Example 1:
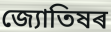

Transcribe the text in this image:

জ্যোতিষৰ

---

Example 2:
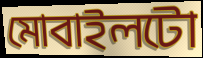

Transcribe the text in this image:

মোবাইলটো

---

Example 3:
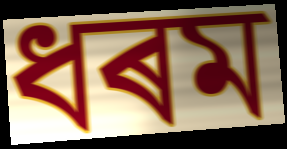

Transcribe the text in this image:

ধৰম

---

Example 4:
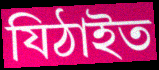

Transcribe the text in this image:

যিঠাইত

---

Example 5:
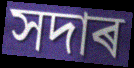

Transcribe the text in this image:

সদাৰ